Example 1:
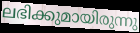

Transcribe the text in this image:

ലഭിക്കുമായിരുന്നു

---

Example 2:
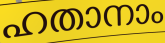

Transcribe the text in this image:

ഹതാനാം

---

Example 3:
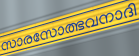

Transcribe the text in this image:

സാരസോത്ഭവനാദി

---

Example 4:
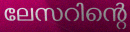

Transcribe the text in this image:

ലേസറിന്റെ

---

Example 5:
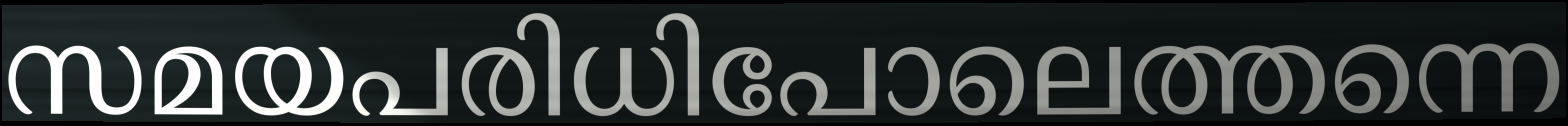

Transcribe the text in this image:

സമയപരിധിപോലെത്തന്നെ